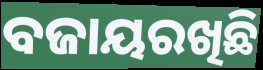
ବଜାୟରଖିଛି